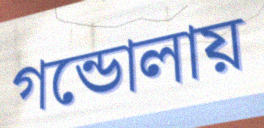
গন্ডোলায়